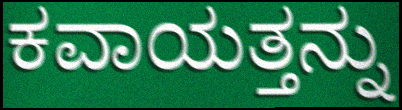
ಕವಾಯತ್ತನ್ನು